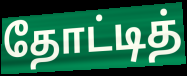
தோட்டித்